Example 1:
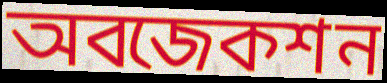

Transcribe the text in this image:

অবজেকশন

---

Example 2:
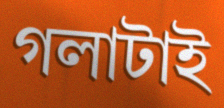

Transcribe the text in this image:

গলাটাই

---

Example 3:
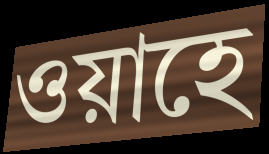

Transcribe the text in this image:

ওয়াহে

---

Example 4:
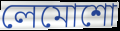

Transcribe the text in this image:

লেমোশো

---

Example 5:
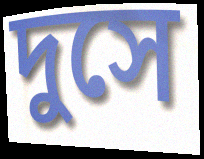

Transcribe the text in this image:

দুসে